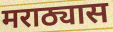
मराठ्यास